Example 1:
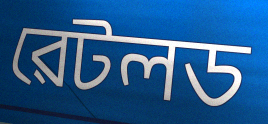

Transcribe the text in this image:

ৱেটলড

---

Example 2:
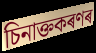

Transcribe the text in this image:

চিনাক্তকৰণৰ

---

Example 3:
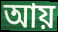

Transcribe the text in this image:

আয়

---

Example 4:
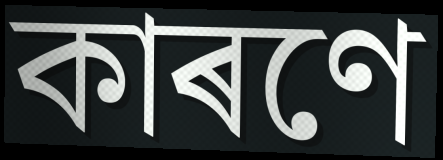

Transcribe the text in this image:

কাৰণে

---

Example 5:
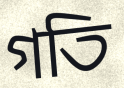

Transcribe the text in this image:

গতি